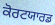
ਕੋਰਟਯਾਰਡ